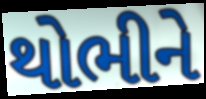
થોભીને